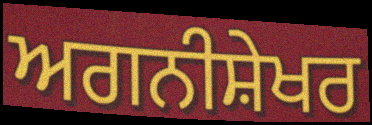
ਅਗਨੀਸ਼ੇਖਰ